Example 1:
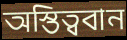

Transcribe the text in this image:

অস্তিত্ববান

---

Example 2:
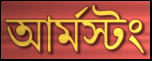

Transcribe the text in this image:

আর্মস্টং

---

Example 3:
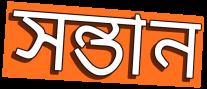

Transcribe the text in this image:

সন্তান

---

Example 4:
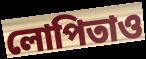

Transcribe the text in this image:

লোপিতাও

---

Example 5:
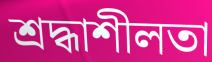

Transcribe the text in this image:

শ্রদ্ধাশীলতা